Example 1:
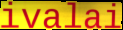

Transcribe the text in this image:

ivalai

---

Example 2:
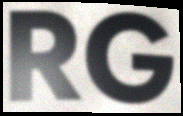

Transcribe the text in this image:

RG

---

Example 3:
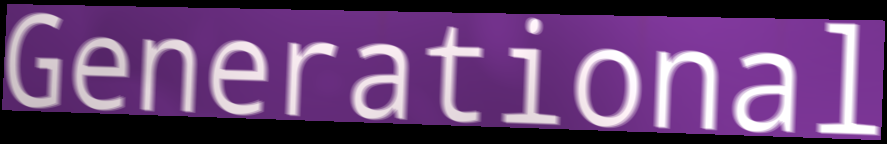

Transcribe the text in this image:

Generational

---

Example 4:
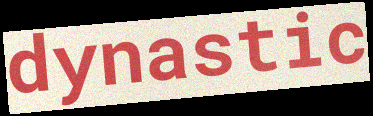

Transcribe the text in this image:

dynastic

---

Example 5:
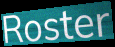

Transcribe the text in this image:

Roster